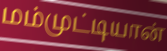
மம்முட்டியான்